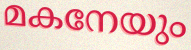
മകനേയും